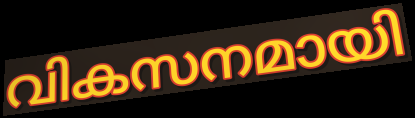
വികസനമായി